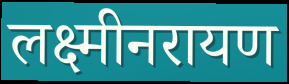
लक्ष्मीनरायण